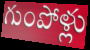
గుంపోళ్లు